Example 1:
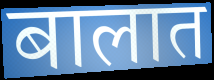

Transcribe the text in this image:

बालात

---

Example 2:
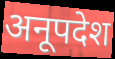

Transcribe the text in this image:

अनूपदेश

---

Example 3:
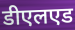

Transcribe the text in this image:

डीएलएड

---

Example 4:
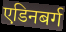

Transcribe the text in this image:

एडिनबर्ग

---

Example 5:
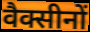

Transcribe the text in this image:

वैक्सीनों